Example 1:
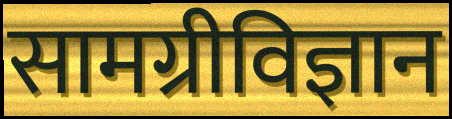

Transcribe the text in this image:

सामग्रीविज्ञान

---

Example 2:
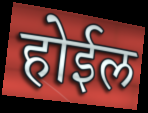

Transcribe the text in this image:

होईल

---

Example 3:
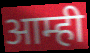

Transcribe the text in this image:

आम्ही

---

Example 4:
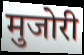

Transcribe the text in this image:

मुजोरी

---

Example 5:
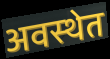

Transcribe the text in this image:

अवस्थेत